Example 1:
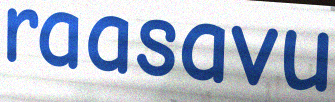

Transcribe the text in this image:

raasavu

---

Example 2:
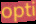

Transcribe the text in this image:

opti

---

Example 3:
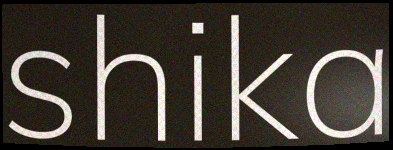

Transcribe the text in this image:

shika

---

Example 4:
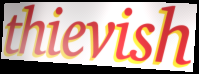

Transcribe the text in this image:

thievish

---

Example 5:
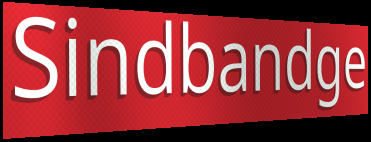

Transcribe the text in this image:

Sindbandge